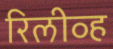
रिलीव्ह